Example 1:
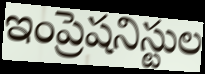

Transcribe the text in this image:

ఇంప్రెషనిస్టుల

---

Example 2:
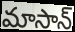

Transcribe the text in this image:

మాసాన్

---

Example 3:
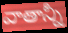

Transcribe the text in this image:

వాతాన్నీ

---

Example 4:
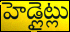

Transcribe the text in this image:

హెడ్లైట్లు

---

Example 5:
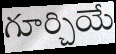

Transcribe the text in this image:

గూర్చియే